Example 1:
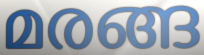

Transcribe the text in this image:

മരങ്ങ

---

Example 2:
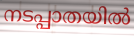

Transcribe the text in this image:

നടപ്പാതയിൽ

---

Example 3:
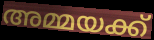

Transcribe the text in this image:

അമ്മയക്ക്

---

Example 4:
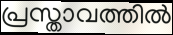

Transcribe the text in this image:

പ്രസ്താവത്തിൽ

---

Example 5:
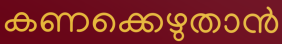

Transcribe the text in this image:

കണക്കെഴുതാൻ